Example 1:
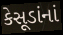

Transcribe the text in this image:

કેસૂડાંનાં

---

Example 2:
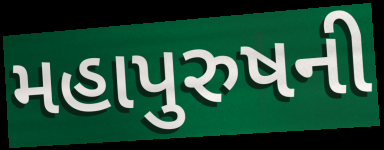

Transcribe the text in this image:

મહાપુરુષની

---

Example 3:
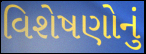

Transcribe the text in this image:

વિશેષણોનું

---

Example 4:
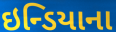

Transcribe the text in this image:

ઇન્ડિયાના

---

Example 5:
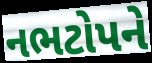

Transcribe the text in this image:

નભટોપને